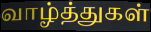
வாழ்த்துகள்